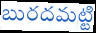
బురదమట్టి